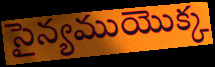
సైన్యముయొక్క